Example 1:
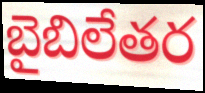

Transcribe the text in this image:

బైబిలేతర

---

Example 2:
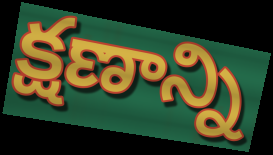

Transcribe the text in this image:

క్షణాన్ని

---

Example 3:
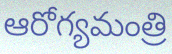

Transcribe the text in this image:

ఆరోగ్యమంత్రి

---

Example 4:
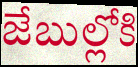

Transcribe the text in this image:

జేబుల్లోకి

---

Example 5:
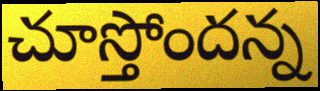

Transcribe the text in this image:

చూస్తోందన్న